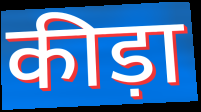
कीड़ा